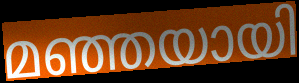
മഞ്ഞയായി